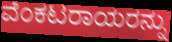
ವೆಂಕಟರಾಯರನ್ನು